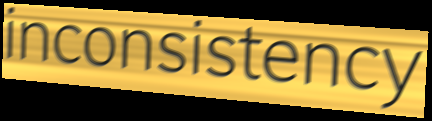
inconsistency